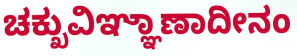
ಚಕ್ಖುವಿಞ್ಞಾಣಾದೀನಂ